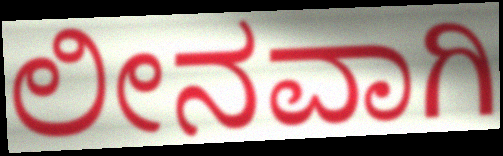
ಲೀನವಾಗಿ